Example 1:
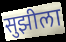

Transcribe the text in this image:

सुझीला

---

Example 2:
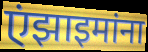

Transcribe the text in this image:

एंझाइमांना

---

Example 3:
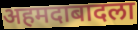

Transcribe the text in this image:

अहमदाबादला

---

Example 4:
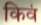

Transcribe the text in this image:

किवं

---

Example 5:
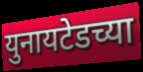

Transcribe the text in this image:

युनायटेडच्या